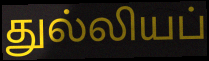
துல்லியப்